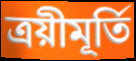
ত্ৰয়ীমূৰ্তি